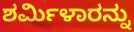
ಶರ್ಮಿಳಾರನ್ನು